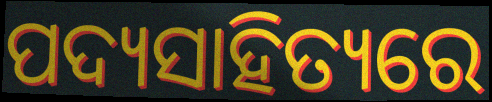
ପଦ୍ୟସାହିତ୍ୟରେ